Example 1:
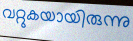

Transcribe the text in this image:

വറ്റുകയായിരുന്നു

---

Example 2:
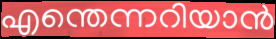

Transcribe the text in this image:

എന്തെന്നറിയാൻ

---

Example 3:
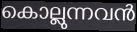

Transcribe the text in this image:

കൊല്ലുന്നവൻ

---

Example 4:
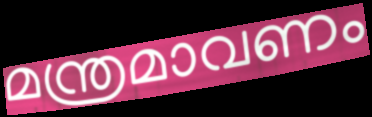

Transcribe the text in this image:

മന്ത്രമാവണം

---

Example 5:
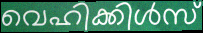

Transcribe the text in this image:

വെഹിക്കിൾസ്